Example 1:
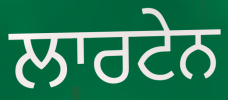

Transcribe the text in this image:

ਲਾਰਟੇਨ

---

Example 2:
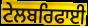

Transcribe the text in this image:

ਟੇਲਬਰਿਫਾਈ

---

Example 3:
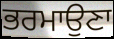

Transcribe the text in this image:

ਭਰਮਾਉਣਾ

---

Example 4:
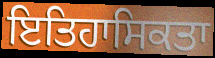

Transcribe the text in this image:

ਇਤਿਹਾਸਿਕਤਾ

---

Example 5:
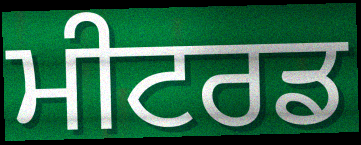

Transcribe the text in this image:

ਮੀਟਰਡ